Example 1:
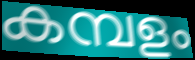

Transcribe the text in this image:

കമ്പളം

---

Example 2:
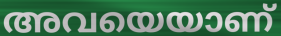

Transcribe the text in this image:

അവയെയാണ്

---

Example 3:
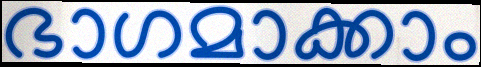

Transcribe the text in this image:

ഭാഗമാക്കാം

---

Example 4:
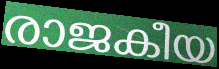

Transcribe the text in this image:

രാജകീയ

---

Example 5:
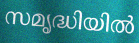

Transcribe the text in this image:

സമൃദ്ധിയിൽ